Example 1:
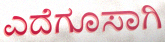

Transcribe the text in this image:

ಎದೆಗೂಸಾಗಿ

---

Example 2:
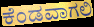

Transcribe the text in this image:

ಕೆಂಡವಾಗಲಿ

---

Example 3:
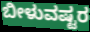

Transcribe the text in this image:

ಬೀಳುವಷ್ಟರ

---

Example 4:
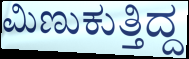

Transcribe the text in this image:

ಮಿಣುಕುತ್ತಿದ್ದ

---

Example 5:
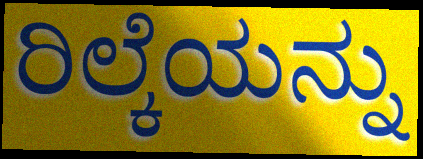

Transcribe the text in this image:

ರಿಲ್ಕೆಯನ್ನು